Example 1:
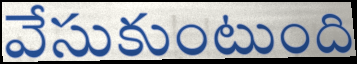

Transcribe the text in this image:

వేసుకుంటుంది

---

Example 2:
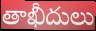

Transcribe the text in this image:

తాఖీదులు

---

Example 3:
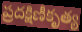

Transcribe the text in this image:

ప్రదక్షిణీకృత్య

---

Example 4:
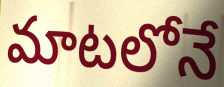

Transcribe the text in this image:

మాటలోనే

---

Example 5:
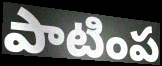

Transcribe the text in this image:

పాటింప